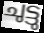
ചുട്ടു